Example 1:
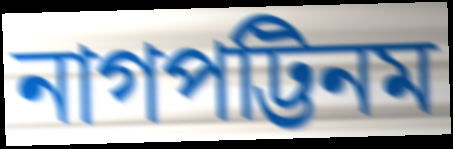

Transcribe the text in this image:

নাগপট্টিনম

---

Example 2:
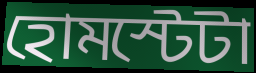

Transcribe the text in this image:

হোমস্টেটা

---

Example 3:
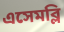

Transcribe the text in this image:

এসেমব্লি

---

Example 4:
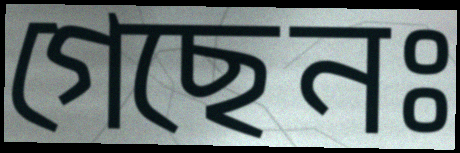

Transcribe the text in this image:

গেছেনঃ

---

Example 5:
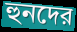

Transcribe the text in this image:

হুনদের